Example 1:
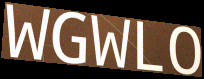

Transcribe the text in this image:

WGWLO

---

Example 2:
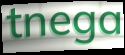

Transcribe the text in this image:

tnega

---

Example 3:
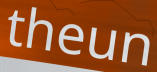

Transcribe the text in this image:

theun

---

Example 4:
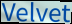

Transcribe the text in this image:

Velvet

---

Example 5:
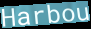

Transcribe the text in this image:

Harbou